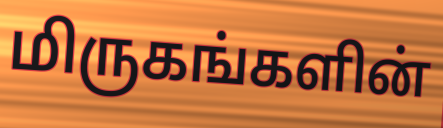
மிருகங்களின்